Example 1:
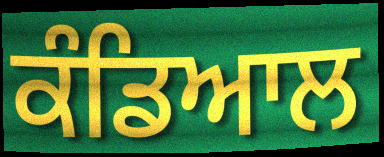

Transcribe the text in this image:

ਕੰਡਿਆਲ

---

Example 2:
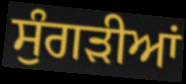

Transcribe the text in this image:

ਸੁੰਗੜੀਆਂ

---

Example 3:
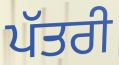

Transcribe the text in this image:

ਪੱਤਰੀ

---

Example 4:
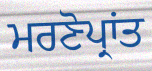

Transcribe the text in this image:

ਮਰਣੋਪ੍ਰਾਂਤ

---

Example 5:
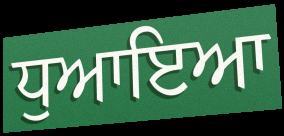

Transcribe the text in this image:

ਧੁਆਇਆ